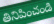
తినిపించండి